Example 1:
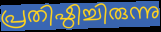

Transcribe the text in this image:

പ്രതിഷ്ഠിച്ചിരുന്നു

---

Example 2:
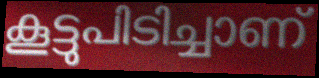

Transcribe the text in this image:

കൂട്ടുപിടിച്ചാണ്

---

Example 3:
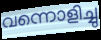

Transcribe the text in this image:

വന്നൊളിച്ചു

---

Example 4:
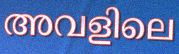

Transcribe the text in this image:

അവളിലെ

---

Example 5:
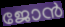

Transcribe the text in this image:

ജോൻ